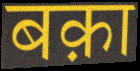
बक़ा